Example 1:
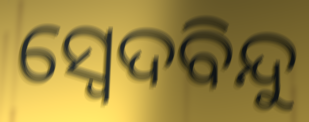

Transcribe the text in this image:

ସ୍ଵେଦବିନ୍ଦୁ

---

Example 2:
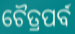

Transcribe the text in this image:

ଚୈତ୍ରପର୍ବ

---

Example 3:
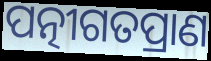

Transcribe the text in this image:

ପତ୍ନୀଗତପ୍ରାଣ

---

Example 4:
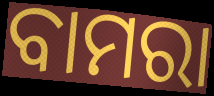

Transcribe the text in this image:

ବାମରା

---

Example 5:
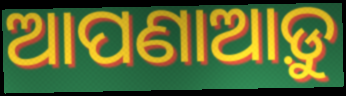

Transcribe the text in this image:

ଆପଣାଆଡ଼ୁ